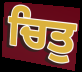
ਚਿਤੁ